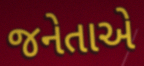
જનેતાએ